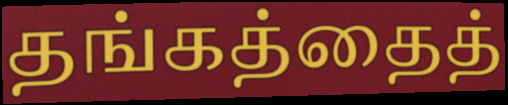
தங்கத்தைத்